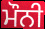
ਮੌਨੀ